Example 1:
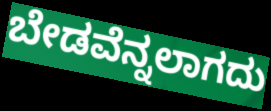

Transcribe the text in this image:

ಬೇಡವೆನ್ನಲಾಗದು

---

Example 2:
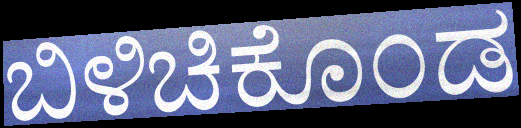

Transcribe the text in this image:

ಬಿಳಿಚಿಕೊಂಡ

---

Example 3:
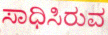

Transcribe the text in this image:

ಸಾಧಿಸಿರುವ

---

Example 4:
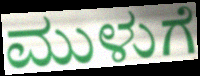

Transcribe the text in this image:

ಮುಳುಗೆ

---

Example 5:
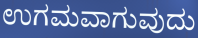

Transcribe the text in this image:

ಉಗಮವಾಗುವುದು